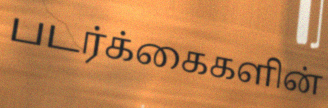
படர்க்கைகளின்